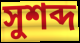
সুশব্দ